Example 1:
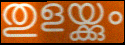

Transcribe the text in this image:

തുളയ്ക്കും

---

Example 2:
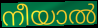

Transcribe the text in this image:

നീയാൽ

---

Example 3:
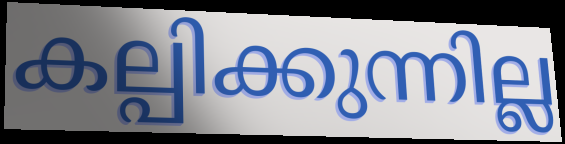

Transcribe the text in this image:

കല്പിക്കുന്നില്ല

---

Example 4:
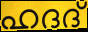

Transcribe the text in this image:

ഹദദ്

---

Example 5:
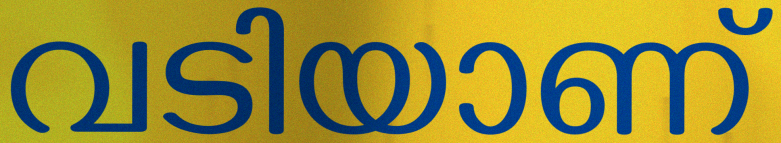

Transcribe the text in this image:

വടിയാണ്